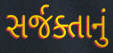
સર્જક્તાનું